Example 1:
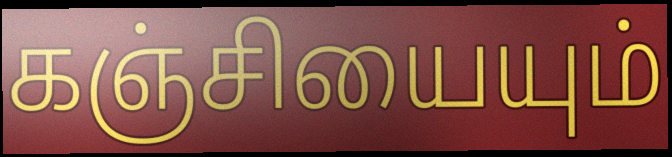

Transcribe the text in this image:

கஞ்சியையும்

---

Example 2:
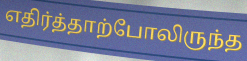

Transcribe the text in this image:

எதிர்த்தாற்போலிருந்த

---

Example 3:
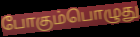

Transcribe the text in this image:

போகும்பொழுது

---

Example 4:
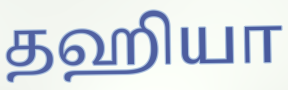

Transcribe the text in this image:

தஹியா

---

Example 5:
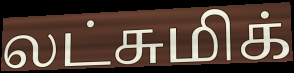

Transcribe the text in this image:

லட்சுமிக்